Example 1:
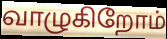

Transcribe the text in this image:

வாழுகிறோம்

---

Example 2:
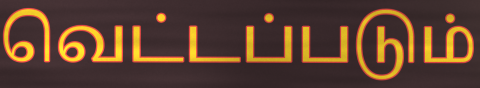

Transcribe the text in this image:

வெட்டப்படும்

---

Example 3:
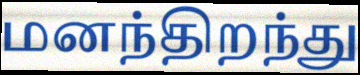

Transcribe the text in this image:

மனந்திறந்து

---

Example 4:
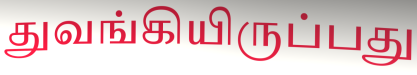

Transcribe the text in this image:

துவங்கியிருப்பது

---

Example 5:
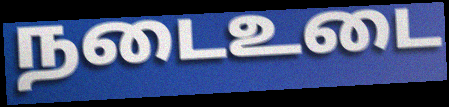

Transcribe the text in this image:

நடைஉடை